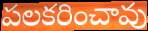
పలకరించావు